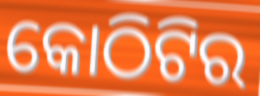
କୋଠିଟିର